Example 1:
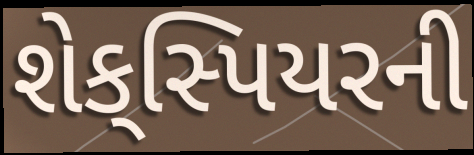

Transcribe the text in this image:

શેક્‌સ્પિયરની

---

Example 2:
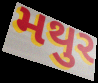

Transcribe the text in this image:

મથુર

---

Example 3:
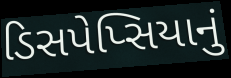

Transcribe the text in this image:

ડિસપેપ્સિયાનું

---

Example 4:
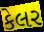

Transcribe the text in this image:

કેલર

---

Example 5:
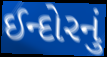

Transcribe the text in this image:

ઈન્દોરનું